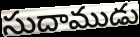
సుదాముడు